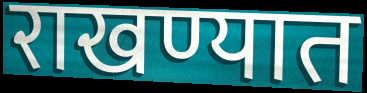
राखण्यात